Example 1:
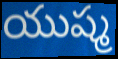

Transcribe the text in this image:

యుష్మ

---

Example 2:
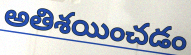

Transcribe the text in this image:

అతిశయించడం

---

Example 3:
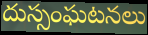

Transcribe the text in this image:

దుస్సంఘటనలు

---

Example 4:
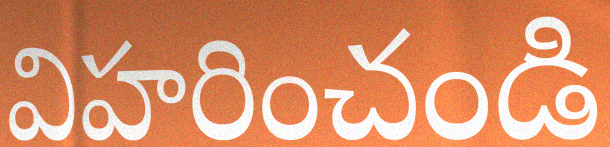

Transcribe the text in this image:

విహరించండి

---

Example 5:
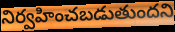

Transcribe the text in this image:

నిర్వహించబడుతుందని